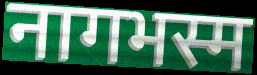
नागभस्म